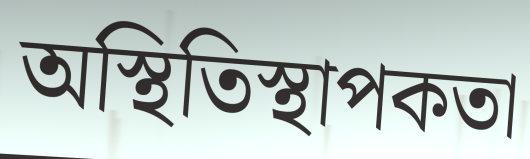
অস্থিতিস্থাপকতা